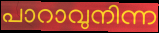
പാറാവുനിന്ന